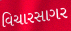
વિચારસાગર